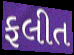
ફલીત